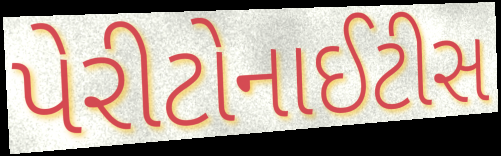
પેરીટોનાઈટીસ